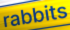
rabbits